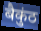
बैकुंठ